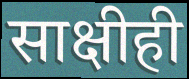
साक्षीही